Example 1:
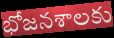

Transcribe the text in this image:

భోజనశాలకు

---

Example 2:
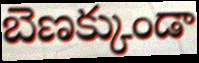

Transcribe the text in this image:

బెణక్కుండా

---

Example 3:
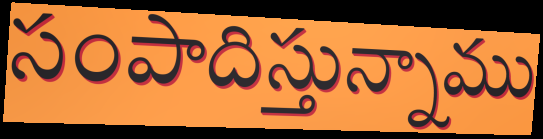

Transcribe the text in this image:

సంపాదిస్తున్నాము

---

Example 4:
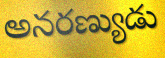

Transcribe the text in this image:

అనరణ్యుడు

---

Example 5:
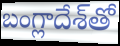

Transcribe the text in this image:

బంగ్లాదేశ్‌తో